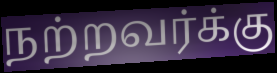
நற்றவர்க்கு